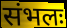
संभलः